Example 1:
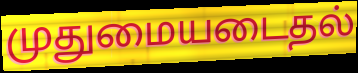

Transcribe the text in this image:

முதுமையடைதல்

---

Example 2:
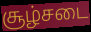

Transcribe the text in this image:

சூழ்சடை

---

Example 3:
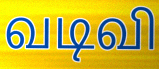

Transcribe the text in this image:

வடிவி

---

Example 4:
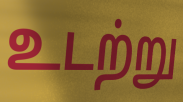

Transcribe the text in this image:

உடற்று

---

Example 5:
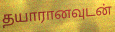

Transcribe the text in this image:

தயாரானவுடன்